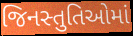
જિનસ્તુતિઓમાં